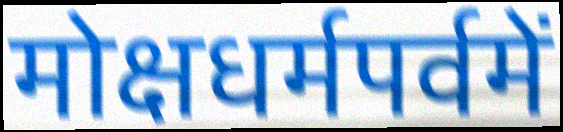
मोक्षधर्मपर्वमें